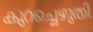
കുറച്ചെഴുതി